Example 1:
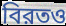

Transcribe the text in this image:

বিরতও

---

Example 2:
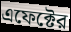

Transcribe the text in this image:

এফেক্টের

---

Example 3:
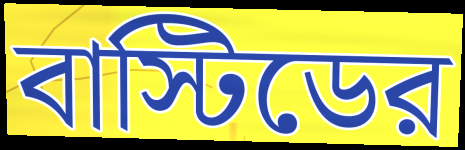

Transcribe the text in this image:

বাস্টিডের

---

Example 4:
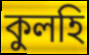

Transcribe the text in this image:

কুলহি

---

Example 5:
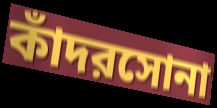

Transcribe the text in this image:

কাঁদরসোনা